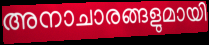
അനാചാരങ്ങളുമായി